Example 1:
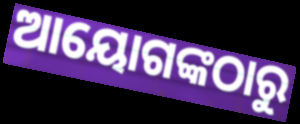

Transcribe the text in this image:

ଆୟୋଗଙ୍କଠାରୁ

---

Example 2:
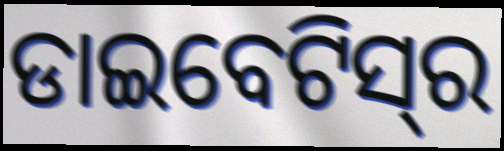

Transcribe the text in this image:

ଡାଇବେଟିସ୍‌ର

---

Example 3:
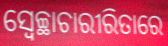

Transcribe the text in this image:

ସ୍ଵେଚ୍ଛାଚାରୀରିତାରେ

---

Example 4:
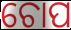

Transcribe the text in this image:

ଚୋପ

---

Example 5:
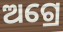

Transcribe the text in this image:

ଅଗ୍ରେ